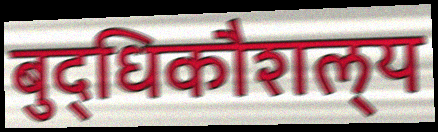
बुद्धिकौशल्य